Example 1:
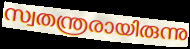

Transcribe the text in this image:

സ്വതന്ത്രരായിരുന്നു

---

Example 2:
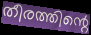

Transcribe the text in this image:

തീരത്തിന്റെ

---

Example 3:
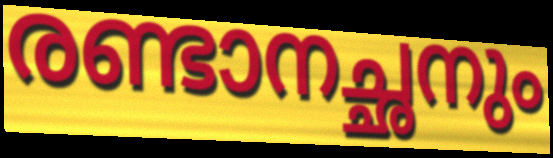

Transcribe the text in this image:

രണ്ടാനച്ഛനും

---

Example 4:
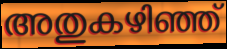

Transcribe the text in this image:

അതുകഴിഞ്ഞ്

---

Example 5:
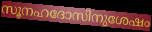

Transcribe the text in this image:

സൂനഹദോസിനുശേഷം